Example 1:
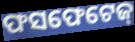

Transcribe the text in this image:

ଫସଫେଟେଜ୍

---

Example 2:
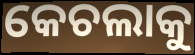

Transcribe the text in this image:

କେଚଲାକୁ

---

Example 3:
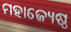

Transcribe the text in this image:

ମହାଜ୍ୟେଷ୍ଠ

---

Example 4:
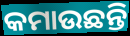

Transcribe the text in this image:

କମାଉଛନ୍ତି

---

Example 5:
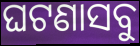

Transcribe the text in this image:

ଘଟଣାସବୁ